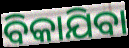
ବିକାଯିବା